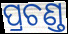
ପ୍ରଚଣ୍ଡ